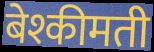
बेश्कीमती